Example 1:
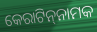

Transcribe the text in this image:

କେରାଟିନ୍‌ନାମକ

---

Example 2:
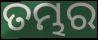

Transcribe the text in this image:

ତମ୍ଭର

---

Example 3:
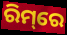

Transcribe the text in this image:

ରିମ୍‌ରେ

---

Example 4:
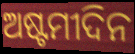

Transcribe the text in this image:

ଅଷ୍ଟମୀଦିନ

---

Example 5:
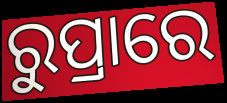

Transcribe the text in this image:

ରୁପ୍ରାରେ